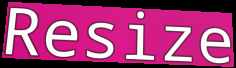
Resize